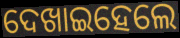
ଦେଖାଇହେଲେ